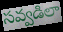
సవ్వడిలా